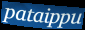
pataippu